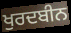
ਖੁਰਦਬੀਨ